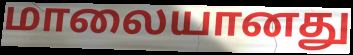
மாலையானது